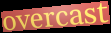
overcast